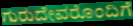
ಗುರುದೇವರೊಂದಿಗೆ